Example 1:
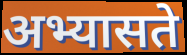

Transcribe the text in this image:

अभ्यासते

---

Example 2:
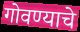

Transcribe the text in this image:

गोवण्याचे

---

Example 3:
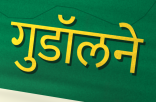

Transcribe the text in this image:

गुडॉलने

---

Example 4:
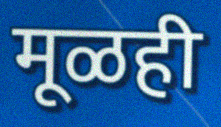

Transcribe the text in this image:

मूळही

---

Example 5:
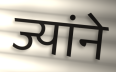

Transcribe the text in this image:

ज्यांने